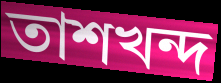
তাশখন্দ